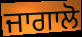
ਜਾਗਾਲੋ